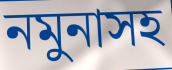
নমুনাসহ